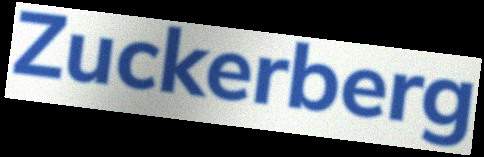
Zuckerberg